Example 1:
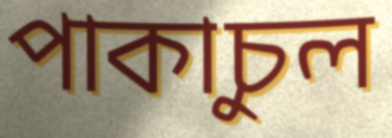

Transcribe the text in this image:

পাকাচুল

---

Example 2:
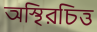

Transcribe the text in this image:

অস্থিরচিত্ত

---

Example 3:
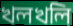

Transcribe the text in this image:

খলখলি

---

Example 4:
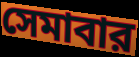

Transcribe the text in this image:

সেমাবার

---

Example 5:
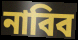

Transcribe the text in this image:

নাবিব